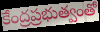
కేంద్రప్రభుత్వంతో